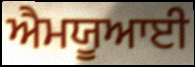
ਐਮਯੂਆਈ